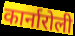
कार्नारोली